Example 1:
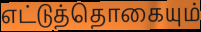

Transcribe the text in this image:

எட்டுத்தொகையும்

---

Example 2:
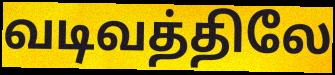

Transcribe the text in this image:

வடிவத்திலே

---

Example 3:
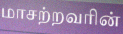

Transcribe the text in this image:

மாசற்றவரின்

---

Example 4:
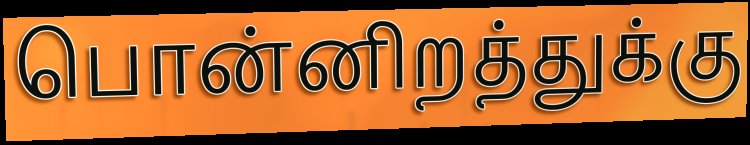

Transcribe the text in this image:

பொன்னிறத்துக்கு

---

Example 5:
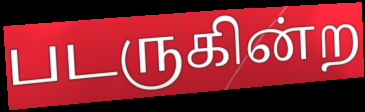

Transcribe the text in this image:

படருகின்ற